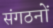
संगठनों